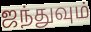
ஜந்துவும்